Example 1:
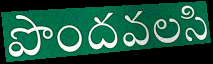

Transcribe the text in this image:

పొందవలసి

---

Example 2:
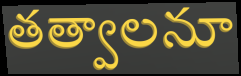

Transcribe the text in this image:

తత్వాలనూ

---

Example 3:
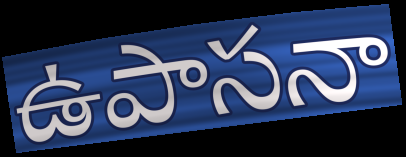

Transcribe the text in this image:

ఉపాసనా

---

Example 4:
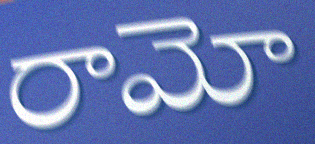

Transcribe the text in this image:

రామో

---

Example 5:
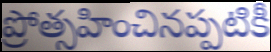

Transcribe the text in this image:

ప్రోత్సహించినప్పటికీ